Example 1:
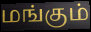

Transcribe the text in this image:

மங்கும்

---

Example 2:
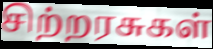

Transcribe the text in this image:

சிற்றரசுகள்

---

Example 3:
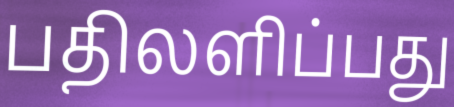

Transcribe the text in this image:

பதிலளிப்பது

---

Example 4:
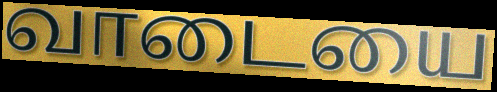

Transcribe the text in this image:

வாடையை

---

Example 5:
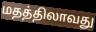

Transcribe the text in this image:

மதத்திலாவது